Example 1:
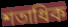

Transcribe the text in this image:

শতাধিক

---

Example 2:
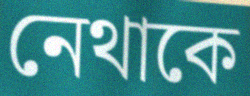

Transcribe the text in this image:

নেথাকে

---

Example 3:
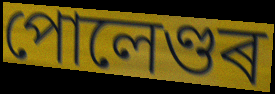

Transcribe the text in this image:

পোলেণ্ডৰ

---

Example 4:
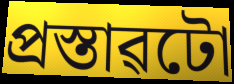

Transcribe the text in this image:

প্ৰস্তাৱটো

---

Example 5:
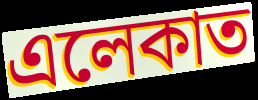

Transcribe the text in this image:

এলেকাত